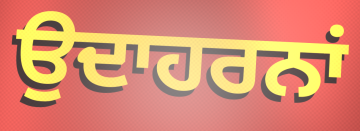
ਉਦਾਹਰਨਾਂ